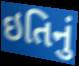
ઇતિનું